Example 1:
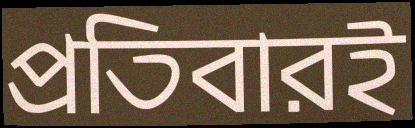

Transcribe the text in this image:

প্রতিবারই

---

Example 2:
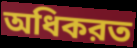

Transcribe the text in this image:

অধিকরত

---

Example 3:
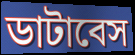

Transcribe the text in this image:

ডাটাবেস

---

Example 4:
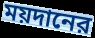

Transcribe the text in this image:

ময়দানের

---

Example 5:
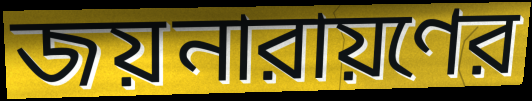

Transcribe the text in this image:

জয়নারায়ণের